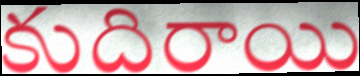
కుదిరాయి